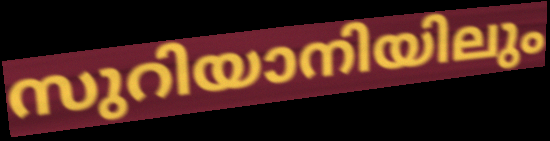
സുറിയാനിയിലും